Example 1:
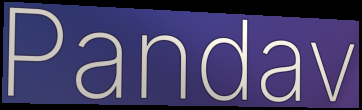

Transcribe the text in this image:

Pandav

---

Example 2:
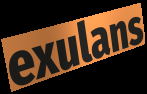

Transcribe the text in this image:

exulans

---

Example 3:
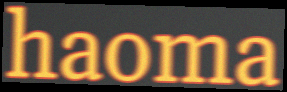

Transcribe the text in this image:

haoma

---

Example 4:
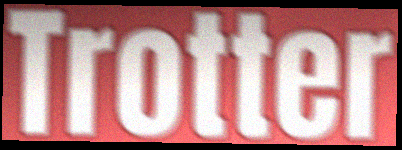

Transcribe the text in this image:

Trotter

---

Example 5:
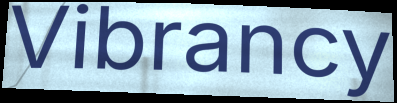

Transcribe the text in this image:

Vibrancy